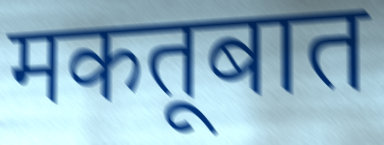
मकतूबात